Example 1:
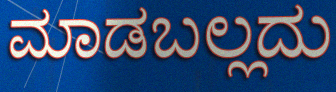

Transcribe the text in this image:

ಮಾಡಬಲ್ಲದು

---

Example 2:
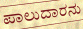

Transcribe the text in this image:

ಪಾಲುದಾರನು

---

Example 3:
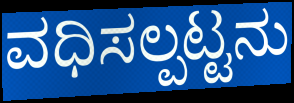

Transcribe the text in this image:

ವಧಿಸಲ್ಪಟ್ಟನು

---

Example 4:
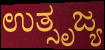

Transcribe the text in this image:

ಉತ್ಸೃಜ್ಯ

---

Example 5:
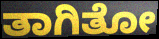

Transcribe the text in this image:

ತಾಗಿತೋ